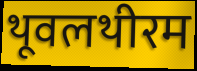
थूवलथीरम